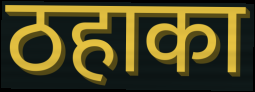
ठहाका